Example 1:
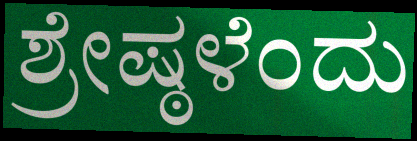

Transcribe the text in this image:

ಶ್ರೇಷ್ಠಳೆಂದು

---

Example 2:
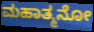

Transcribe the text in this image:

ಮಹಾತ್ಮನೋ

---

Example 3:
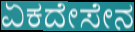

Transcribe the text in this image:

ಏಕದೇಸೇನ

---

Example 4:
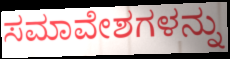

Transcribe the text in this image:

ಸಮಾವೇಶಗಳನ್ನು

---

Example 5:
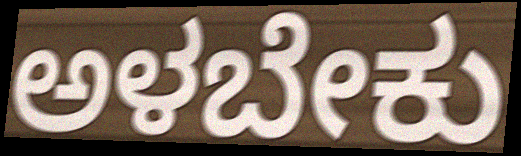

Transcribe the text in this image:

ಅಳಬೇಕು